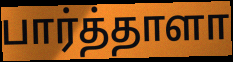
பார்த்தாளா